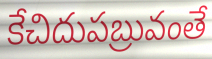
కేచిదుపబ్రువంతే